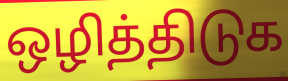
ஒழித்திடுக